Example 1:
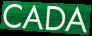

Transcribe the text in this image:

CADA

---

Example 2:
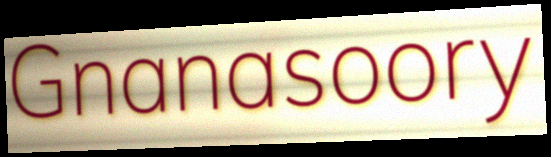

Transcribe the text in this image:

Gnanasoory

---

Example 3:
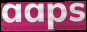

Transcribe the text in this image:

aaps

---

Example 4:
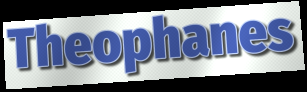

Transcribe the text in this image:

Theophanes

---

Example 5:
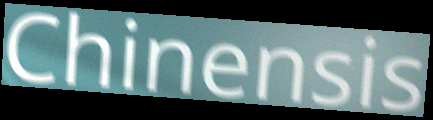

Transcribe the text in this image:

Chinensis